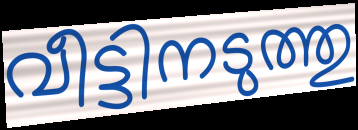
വീട്ടിനടുത്തു